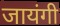
जायंगी